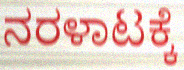
ನರಳಾಟಕ್ಕೆ